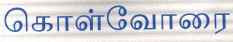
கொள்வோரை